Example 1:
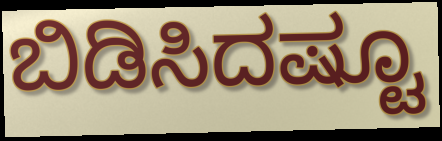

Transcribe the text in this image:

ಬಿಡಿಸಿದಷ್ಟೂ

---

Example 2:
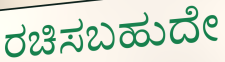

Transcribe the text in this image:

ರಚಿಸಬಹುದೇ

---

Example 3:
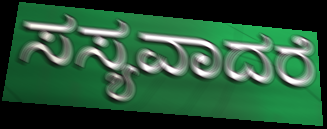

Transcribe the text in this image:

ಸಸ್ಯವಾದರೆ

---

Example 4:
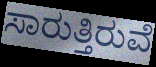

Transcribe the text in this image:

ಸಾರುತ್ತಿರುವೆ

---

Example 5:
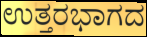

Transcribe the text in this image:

ಉತ್ತರಭಾಗದ